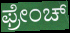
ಫ್ರೇಂಚ್